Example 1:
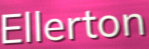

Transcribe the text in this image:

Ellerton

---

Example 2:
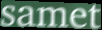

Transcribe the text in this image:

samet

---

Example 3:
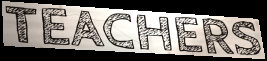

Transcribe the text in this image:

TEACHERS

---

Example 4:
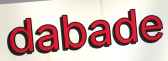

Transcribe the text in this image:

dabade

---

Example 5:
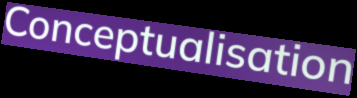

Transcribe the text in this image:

Conceptualisation